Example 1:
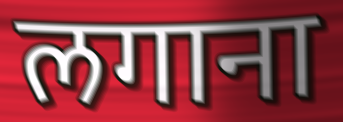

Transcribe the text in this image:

लगाना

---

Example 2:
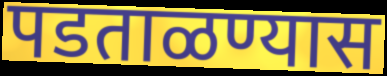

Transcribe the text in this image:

पडताळण्यास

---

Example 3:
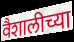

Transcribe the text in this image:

वैशालीच्या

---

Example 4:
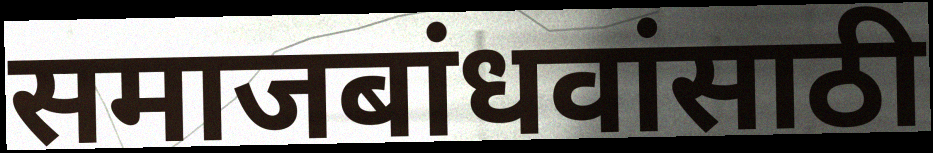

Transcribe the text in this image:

समाजबांधवांसाठी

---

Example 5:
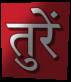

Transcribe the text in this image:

तुरें